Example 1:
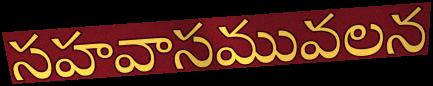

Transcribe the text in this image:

సహవాసమువలన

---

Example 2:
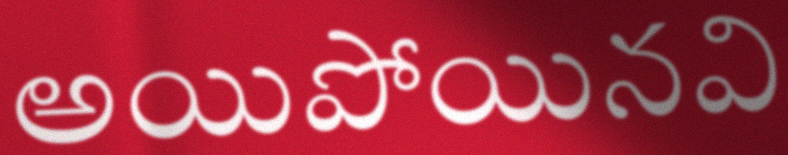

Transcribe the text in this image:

అయిపోయినవి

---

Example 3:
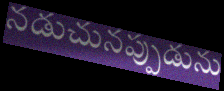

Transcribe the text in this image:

నడుచునప్పుడును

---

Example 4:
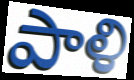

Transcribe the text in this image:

పాళి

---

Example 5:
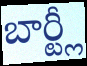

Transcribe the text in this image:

బార్ట్లీ